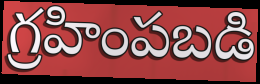
గ్రహింపబడి